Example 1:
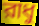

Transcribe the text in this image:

রাধু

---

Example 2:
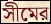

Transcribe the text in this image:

সীমের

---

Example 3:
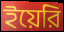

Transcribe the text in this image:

ইয়েরি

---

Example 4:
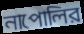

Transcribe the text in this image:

নাপোলির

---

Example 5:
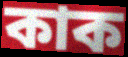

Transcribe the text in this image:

কাক